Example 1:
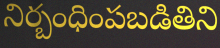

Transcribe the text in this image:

నిర్బంధింపబడితిని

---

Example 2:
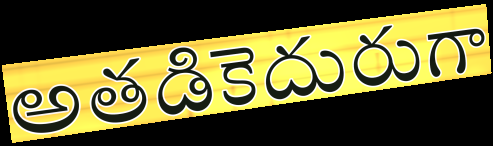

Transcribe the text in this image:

అతడికెదురుగా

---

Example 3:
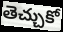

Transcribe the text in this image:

తెచ్చుకో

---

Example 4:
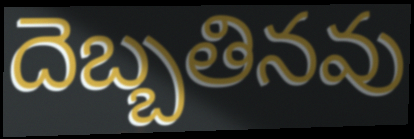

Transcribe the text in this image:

దెబ్బతినవు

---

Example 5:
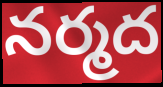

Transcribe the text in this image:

నర్మద